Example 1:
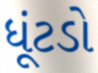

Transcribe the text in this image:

ધૂંટડો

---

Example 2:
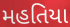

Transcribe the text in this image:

મહતિયા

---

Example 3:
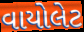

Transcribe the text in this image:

વાયોલેટ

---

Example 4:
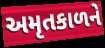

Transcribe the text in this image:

અમૃતકાળને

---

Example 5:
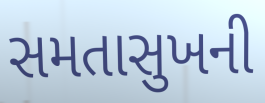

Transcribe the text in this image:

સમતાસુખની